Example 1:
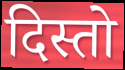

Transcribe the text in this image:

दिस्तो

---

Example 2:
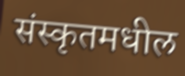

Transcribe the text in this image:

संस्कृतमधील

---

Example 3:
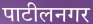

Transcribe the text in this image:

पाटीलनगर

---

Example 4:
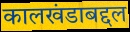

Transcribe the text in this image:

कालखंडाबद्दल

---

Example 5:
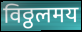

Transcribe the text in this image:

विठ्ठलमय